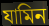
যামিন